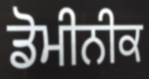
ਡੋਮੀਨੀਕ